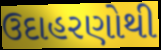
ઉદાહરણોથી